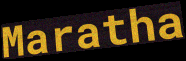
Maratha